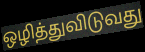
ஒழித்துவிடுவது